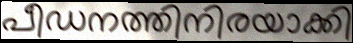
പീഡനത്തിനിരയാക്കി